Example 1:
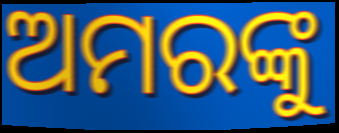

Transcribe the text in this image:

ଅମରଙ୍କୁ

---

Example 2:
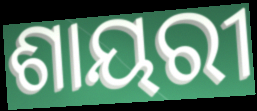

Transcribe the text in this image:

ଶାୟରୀ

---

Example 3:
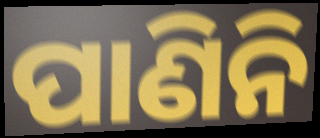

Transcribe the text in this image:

ପାଣିନି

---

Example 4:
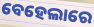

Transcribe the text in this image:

ବେହେଲାରେ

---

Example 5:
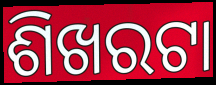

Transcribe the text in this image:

ଶିଖରଟା